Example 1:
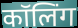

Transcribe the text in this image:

कॉलिंग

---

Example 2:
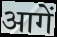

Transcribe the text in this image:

आगें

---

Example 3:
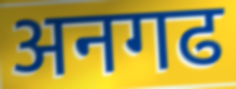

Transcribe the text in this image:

अनगढ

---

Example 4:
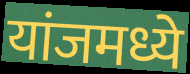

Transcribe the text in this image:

यांजमध्ये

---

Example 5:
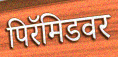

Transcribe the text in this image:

पिरॅमिडवर